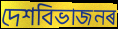
দেশবিভাজনৰ